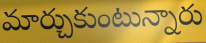
మార్చుకుంటున్నారు